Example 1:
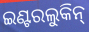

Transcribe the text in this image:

ଇଣ୍ଟରଲୁକିନ୍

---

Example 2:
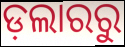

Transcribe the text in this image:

ଡ଼ଲାରରୁ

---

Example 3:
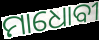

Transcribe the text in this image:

ମାଧୋବୀ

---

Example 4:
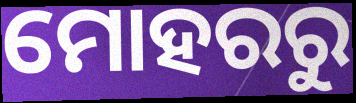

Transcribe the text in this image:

ମୋହରରୁ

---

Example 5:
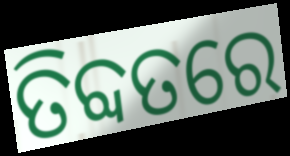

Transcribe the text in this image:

ତିବ୍ଦତରେ